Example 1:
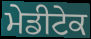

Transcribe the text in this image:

ਮੇਡੀਟੇਕ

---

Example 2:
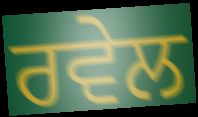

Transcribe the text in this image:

ਰਵੇਲ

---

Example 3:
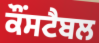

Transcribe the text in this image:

ਕੌਂਸਟੈਬਲ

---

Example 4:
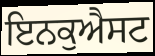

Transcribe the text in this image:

ਇਨਕੁਐਸਟ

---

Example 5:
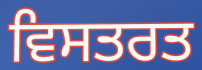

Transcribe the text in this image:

ਵਿਸਤਰਤ